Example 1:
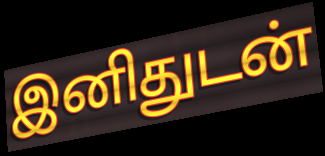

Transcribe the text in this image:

இனிதுடன்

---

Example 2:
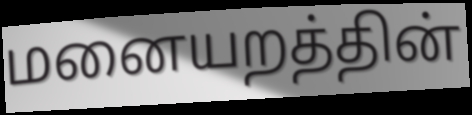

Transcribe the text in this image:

மனையறத்தின்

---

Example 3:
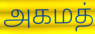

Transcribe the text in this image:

அகமத்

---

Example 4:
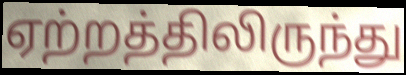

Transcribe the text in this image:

ஏற்றத்திலிருந்து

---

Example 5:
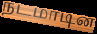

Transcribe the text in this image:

நடமாடின